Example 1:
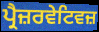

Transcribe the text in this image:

ਪ੍ਰੈਜ਼ਰਵੇਟਿਵਜ਼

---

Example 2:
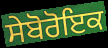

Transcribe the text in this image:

ਸੇਬੋਰੋਇਕ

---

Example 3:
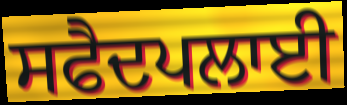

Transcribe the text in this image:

ਸਫੈਦਪਲਾਈ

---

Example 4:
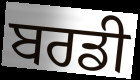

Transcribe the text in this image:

ਬਰਡੀ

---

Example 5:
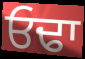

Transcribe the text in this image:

ਓਢਾ